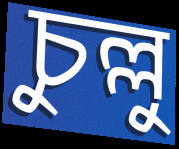
চুল্লু